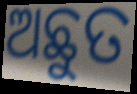
ଅଛୁତ